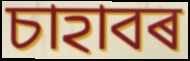
চাহাবৰ